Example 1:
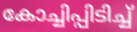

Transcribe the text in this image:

കോച്ചിപ്പിടിച്ച്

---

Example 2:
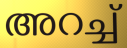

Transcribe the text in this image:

അറച്ച്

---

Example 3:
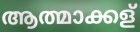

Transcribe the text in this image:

ആത്മാക്കള്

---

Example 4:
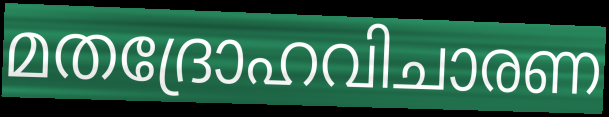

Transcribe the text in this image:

മതദ്രോഹവിചാരണ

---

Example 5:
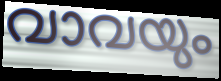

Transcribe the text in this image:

വാവയും